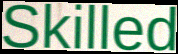
Skilled